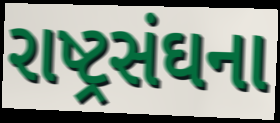
રાષ્ટ્રસંઘના